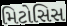
મિટોસિસ